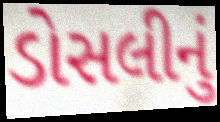
ડોસલીનું